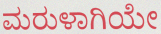
ಮರುಳಾಗಿಯೇ